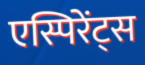
एस्पिरेंट्स